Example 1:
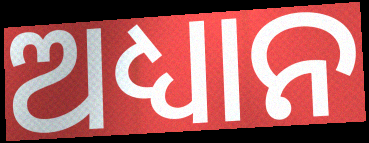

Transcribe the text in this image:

ଅଧ୍ୟାନ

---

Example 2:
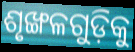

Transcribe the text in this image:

ଶୃଙ୍ଖଳଗୁଡ଼ିକୁ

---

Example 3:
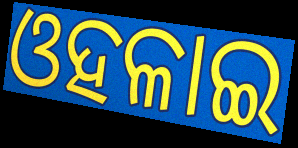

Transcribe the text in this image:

ଓହଳାଇ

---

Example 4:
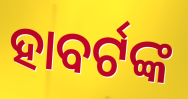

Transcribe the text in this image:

ହାବର୍ଟଙ୍କ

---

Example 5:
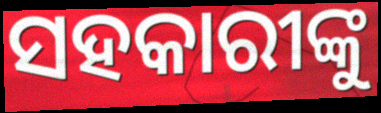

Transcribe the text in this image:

ସହକାରୀଙ୍କୁ